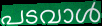
പടവാൾ